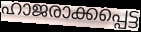
ഹാജരാക്കപ്പെട്ട